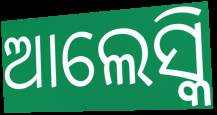
ଆଲେସ୍କି